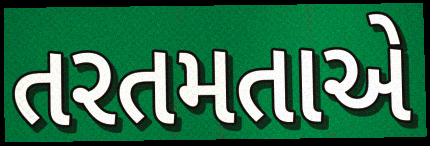
તરતમતાએ